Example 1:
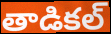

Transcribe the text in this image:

తాడికల్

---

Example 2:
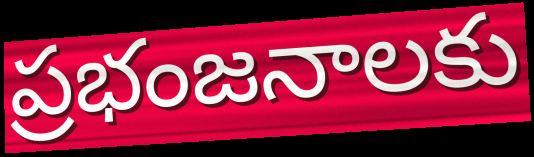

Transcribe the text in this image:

ప్రభంజనాలకు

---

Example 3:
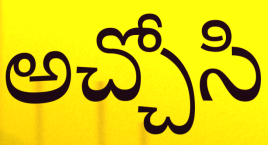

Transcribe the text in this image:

అచ్చోసి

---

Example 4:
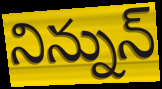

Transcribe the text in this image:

నిన్నున్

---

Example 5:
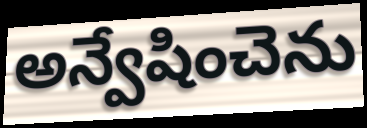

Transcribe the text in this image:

అన్వేషించెను